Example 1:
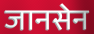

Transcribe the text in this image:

जानसेन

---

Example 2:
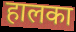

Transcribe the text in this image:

हालका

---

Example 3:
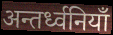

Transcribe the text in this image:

अन्तर्ध्वनियाँ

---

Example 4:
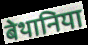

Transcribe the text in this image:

बेथानिया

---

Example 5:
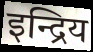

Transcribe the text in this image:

इन्द्रिय